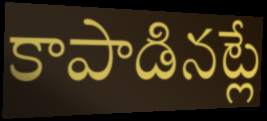
కాపాడినట్లే